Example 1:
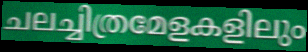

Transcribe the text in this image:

ചലച്ചിത്രമേളകളിലും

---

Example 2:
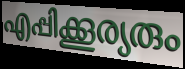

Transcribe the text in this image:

എപ്പിക്കൂര്യരും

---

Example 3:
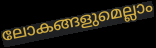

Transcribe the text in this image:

ലോകങ്ങളുമെല്ലാം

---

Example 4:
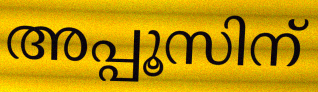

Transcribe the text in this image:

അപ്പൂസിന്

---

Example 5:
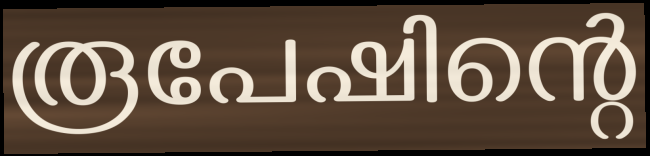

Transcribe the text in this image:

രൂപേഷിന്റെ